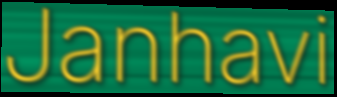
Janhavi